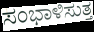
ಸಂಭಾಳಿಸುತ್ತ